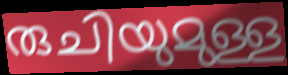
രുചിയുമുള്ള